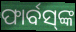
ଫାର୍ବସ୍‌ଙ୍କ